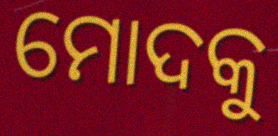
ମୋଦକୁ